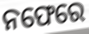
ନଫେରେ